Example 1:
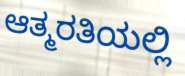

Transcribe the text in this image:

ಆತ್ಮರತಿಯಲ್ಲಿ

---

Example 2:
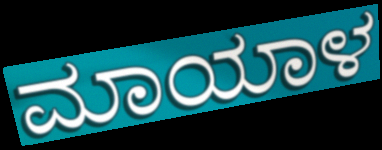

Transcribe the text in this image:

ಮಾಯಾಳ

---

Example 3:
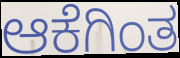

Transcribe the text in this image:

ಆಕೆಗಿಂತ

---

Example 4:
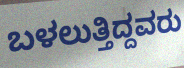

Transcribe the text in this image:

ಬಳಲುತ್ತಿದ್ದವರು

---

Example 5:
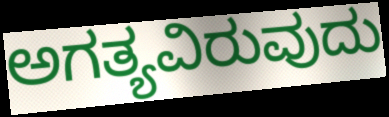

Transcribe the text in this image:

ಅಗತ್ಯವಿರುವುದು